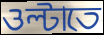
ওল্টাতে